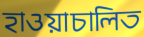
হাওয়াচালিত